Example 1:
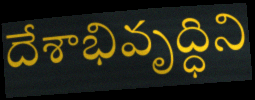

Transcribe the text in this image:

దేశాభివృద్ధిని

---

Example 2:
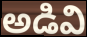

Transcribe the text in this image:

అడివి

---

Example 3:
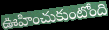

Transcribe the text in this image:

ఊహించుకుంటోంది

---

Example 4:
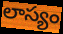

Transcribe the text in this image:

లాస్యం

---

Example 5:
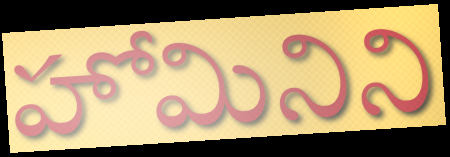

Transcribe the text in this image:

హోమినిని